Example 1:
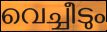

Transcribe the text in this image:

വെച്ചീടും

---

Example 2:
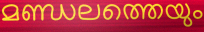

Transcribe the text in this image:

മണ്ഡലത്തെയും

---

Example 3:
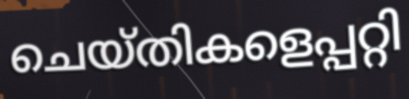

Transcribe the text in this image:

ചെയ്തികളെപ്പറ്റി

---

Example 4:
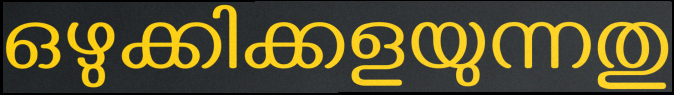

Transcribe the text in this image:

ഒഴുക്കിക്കളയുന്നതു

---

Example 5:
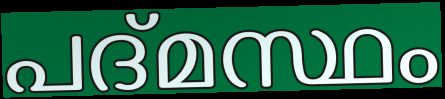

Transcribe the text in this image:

പദ്മസ്ഥം